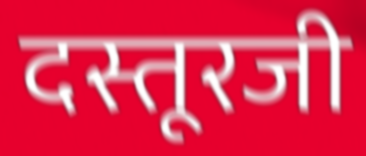
दस्तूरजी